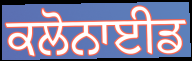
ਕਲੋਨਾਈਡ